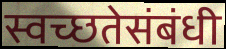
स्वच्छतेसंबंधी